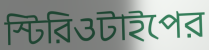
স্টিরিওটাইপের